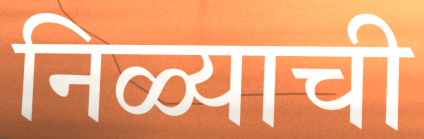
निळ्याची